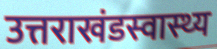
उत्तराखंडस्वास्थ्य